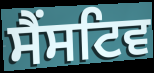
ਸੈਂਸਟਿਵ